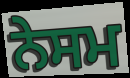
ਨੇਸਮ